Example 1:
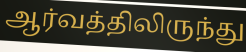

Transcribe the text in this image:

ஆர்வத்திலிருந்து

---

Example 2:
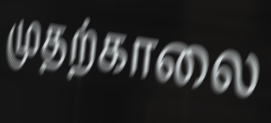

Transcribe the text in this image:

முதற்காலை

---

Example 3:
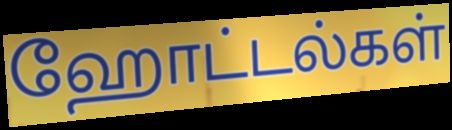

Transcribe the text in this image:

ஹோட்டல்கள்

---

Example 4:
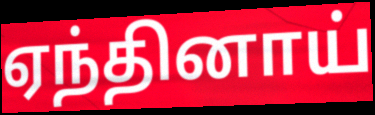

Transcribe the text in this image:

ஏந்தினாய்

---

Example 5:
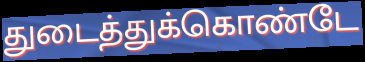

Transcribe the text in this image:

துடைத்துக்கொண்டே